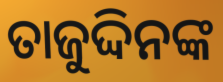
ତାଜୁଦ୍ଦିନଙ୍କ